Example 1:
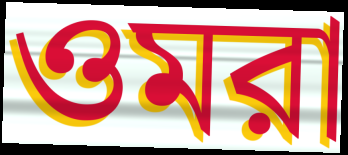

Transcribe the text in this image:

ওমরা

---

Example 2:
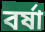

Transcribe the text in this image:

বর্ষা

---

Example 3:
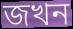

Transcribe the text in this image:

জখন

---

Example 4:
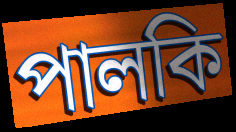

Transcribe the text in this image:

পালকি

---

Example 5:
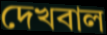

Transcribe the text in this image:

দেখবাল